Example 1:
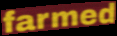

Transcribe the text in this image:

farmed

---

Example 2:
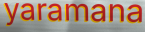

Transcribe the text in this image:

yaramana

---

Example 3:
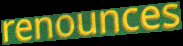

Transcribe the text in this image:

renounces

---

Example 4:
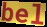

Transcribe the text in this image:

bel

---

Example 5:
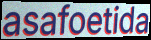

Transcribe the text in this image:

asafoetida